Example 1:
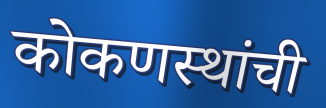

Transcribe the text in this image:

कोकणस्थांची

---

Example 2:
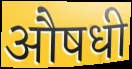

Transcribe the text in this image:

औषधी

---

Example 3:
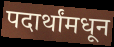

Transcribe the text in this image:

पदार्थांमधून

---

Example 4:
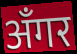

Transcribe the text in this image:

अँगर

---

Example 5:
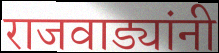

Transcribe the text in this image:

राजवाड्यांनी